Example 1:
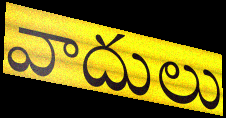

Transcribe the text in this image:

వాదులు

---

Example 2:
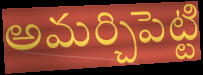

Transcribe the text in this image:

అమర్చిపెట్టి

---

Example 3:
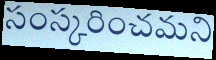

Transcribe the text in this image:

సంస్కరించమని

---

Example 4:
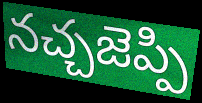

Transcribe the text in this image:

నచ్చజెప్పి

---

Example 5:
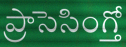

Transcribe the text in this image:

ప్రాసెసింగ్తో